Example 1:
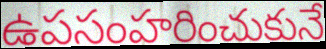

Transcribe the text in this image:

ఉపసంహరించుకునే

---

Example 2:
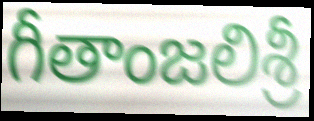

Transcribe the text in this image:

గీతాంజలిశ్రీ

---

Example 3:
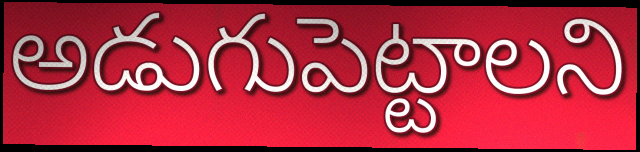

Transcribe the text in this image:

అడుగుపెట్టాలని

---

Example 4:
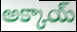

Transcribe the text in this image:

అక్కాయ్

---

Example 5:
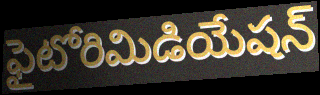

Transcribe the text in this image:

ఫైటోరిమిడియేషన్